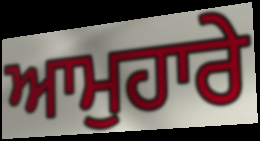
ਆਮੁਹਾਰੇ